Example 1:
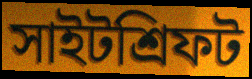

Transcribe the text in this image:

সাইটশ্রিফট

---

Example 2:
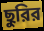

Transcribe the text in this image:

ছুরির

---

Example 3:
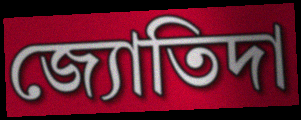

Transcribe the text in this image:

জ্যোতিদা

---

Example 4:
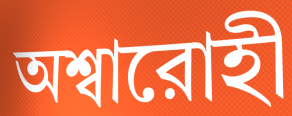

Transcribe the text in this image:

অশ্বারোহী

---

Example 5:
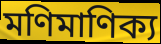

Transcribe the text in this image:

মণিমাণিক্য